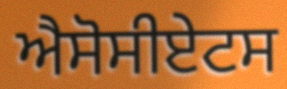
ਐਸੋਸੀਏਟਸ